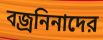
বজ্রনিনাদের